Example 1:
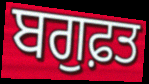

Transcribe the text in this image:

ਬਗੁਫ਼ਤ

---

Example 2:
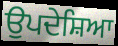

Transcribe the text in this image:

ਉਪਦੇਸ਼ਿਆ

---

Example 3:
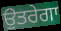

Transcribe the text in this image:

ਉਤਰੇਗਾ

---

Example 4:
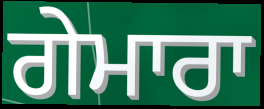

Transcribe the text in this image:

ਗੇਮਾਰਾ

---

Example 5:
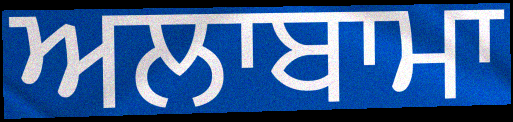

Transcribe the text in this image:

ਅਲਾਬਾਮਾ